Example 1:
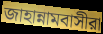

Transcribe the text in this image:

জাহান্নামবাসীরা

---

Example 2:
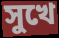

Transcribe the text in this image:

সুখে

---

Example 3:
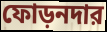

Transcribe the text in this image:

ফোড়নদার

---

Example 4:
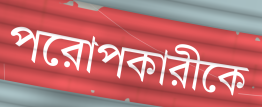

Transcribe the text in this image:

পরোপকারীকে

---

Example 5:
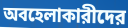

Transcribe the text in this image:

অবহেলাকারীদের